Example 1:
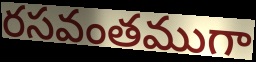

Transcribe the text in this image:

రసవంతముగా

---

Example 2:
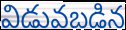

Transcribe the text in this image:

విడువబడిన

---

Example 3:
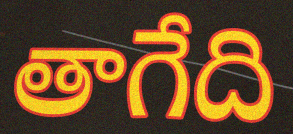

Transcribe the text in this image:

తాగేది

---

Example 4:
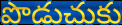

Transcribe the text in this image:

పొడుచుకు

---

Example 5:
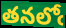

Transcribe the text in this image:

తనలోఁ